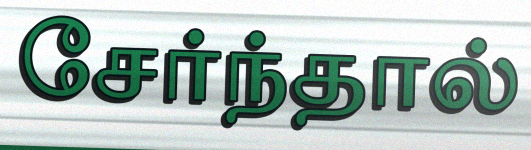
சேர்ந்தால்